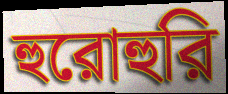
হুরোহুরি